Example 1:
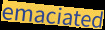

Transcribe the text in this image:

emaciated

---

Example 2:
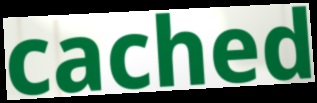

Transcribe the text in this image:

cached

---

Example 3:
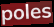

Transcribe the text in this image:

poles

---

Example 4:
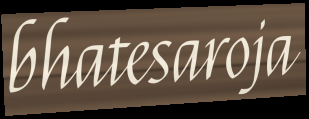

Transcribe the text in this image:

bhatesaroja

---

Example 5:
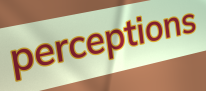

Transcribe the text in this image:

perceptions